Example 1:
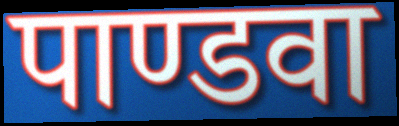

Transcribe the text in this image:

पाण्डवा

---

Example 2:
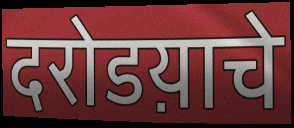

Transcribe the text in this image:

दरोडय़ाचे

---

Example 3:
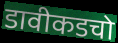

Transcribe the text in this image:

डावीकडचो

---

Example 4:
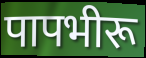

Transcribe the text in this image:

पापभीरू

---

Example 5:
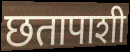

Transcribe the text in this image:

छतापाशी